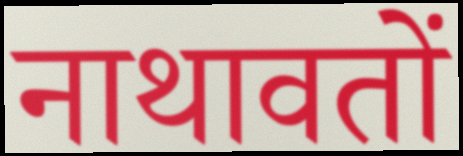
नाथावतों